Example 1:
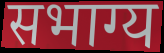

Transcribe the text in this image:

सभाग्य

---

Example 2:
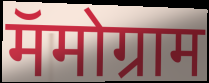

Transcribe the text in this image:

मॅमोग्राम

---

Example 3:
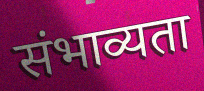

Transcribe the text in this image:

संभाव्यता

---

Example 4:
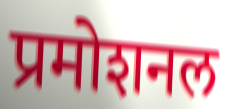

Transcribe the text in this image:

प्रमोशनल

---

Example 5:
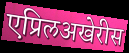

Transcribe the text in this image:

एप्रिलअखेरीस